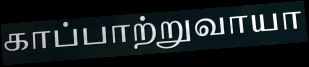
காப்பாற்றுவாயா